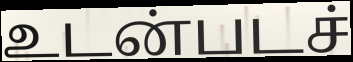
உடன்படச்